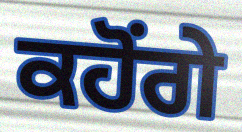
ਕਹੋਂਗੇ